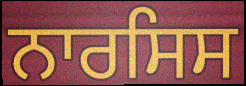
ਨਾਰਸਿਸ